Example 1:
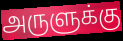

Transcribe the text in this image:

அருளுக்கு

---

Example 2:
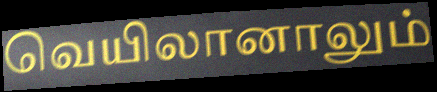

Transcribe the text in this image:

வெயிலானாலும்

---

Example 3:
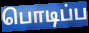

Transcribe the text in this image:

பொடிப்ப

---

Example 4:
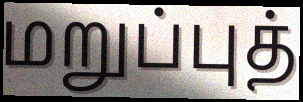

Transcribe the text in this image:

மறுப்புத்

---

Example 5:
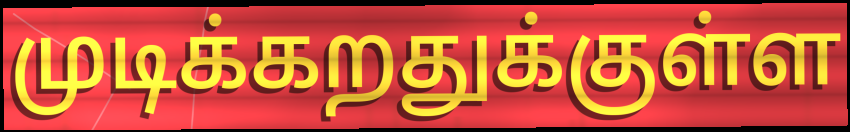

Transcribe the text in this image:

முடிக்கறதுக்குள்ள